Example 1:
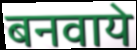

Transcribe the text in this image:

बनवाये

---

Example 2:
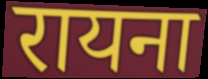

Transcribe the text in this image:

रायना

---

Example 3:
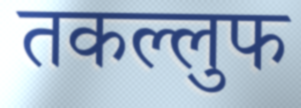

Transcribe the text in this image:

तकल्लुफ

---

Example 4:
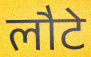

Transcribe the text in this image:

लौटे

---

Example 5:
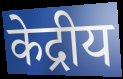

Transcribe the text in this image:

केद्रीय